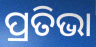
ପ୍ରତିଭା